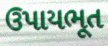
ઉપાયભૂત